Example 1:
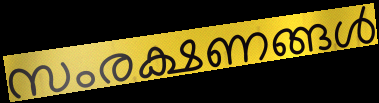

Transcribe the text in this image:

സംരക്ഷണങ്ങൾ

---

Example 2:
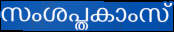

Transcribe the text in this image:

സംശപ്തകാംസ്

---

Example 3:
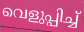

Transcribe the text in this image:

വെളുപ്പിച്ച്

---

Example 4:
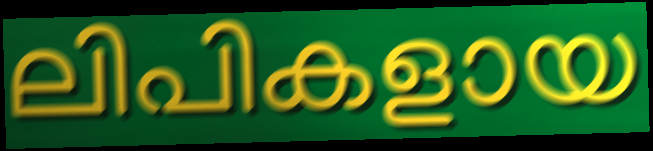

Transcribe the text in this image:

ലിപികളായ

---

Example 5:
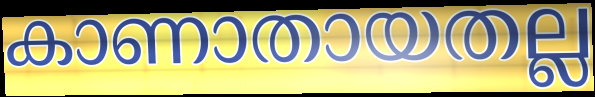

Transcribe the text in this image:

കാണാതായതല്ല